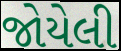
જોયેલી